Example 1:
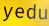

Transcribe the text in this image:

yedu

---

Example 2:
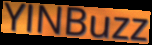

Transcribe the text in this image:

YINBuzz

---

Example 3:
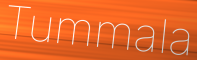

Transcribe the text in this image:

Tummala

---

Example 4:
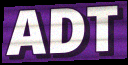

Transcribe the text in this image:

ADT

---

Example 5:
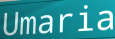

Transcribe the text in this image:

Umaria